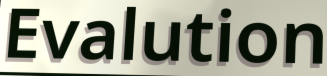
Evalution